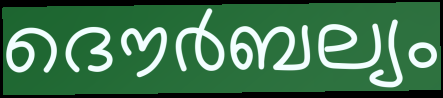
ദൌർബല്യം